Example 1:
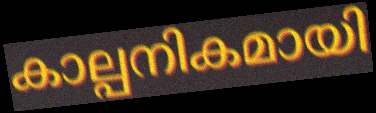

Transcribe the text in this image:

കാല്പനികമായി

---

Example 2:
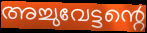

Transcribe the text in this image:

അച്ചുവേട്ടന്റെ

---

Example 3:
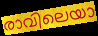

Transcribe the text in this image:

രാവിലെയാ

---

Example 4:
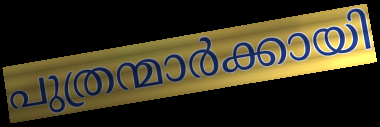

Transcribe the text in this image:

പുത്രന്മാർക്കായി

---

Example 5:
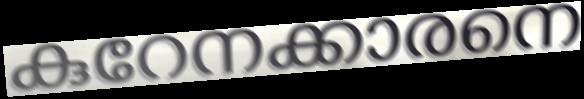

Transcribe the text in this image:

കുറേനക്കാരനെ